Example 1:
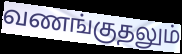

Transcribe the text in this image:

வணங்குதலும்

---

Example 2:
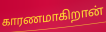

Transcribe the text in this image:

காரணமாகிறான்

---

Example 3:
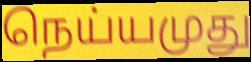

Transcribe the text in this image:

நெய்யமுது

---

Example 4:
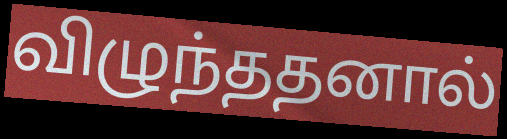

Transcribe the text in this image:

விழுந்ததனால்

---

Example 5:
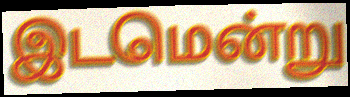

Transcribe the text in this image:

இடமென்று